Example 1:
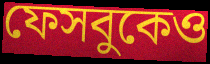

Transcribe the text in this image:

ফেসবুকেও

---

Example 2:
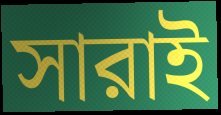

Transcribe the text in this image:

সারাই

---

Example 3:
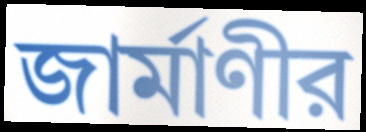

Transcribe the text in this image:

জার্মাণীর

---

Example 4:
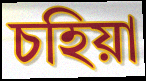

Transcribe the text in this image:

চহিয়া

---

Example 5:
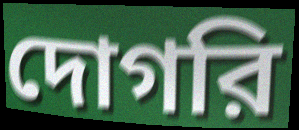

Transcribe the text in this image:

দোগরি